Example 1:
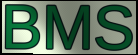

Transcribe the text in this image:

BMS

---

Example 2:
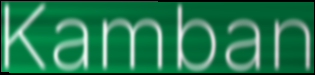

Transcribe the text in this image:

Kamban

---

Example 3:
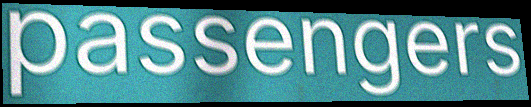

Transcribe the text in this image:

passengers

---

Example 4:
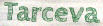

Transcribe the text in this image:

Tarceva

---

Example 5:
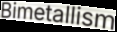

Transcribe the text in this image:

Bimetallism